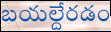
బయల్దేరడం